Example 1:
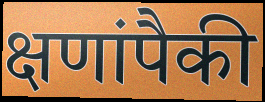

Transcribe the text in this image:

क्षणांपैकी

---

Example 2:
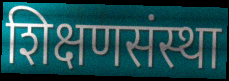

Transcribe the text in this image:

शिक्षणसंस्था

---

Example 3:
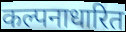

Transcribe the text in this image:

कल्पनाधारित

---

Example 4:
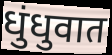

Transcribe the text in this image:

धुंधुवात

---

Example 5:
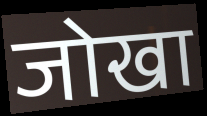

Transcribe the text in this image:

जोखा